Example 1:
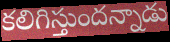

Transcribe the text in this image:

కలిగిస్తుందన్నాడు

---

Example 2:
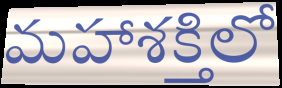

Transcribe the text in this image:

మహాశక్తిలో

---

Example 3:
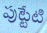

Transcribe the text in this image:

పుట్టేటి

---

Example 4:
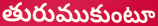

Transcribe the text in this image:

తురుముకుంటూ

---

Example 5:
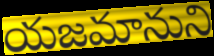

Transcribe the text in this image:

యజమానుని